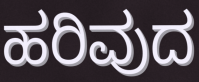
ಹರಿವುದ